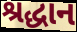
શ્રદ્ધાન